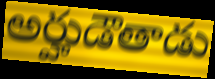
అర్హుడౌతాడు